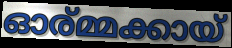
ഓര്മ്മക്കായ്